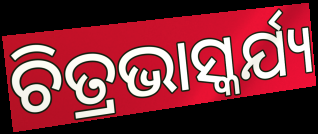
ଚିତ୍ରଭାସ୍କର୍ଯ୍ୟ